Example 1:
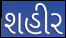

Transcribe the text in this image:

શહીર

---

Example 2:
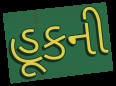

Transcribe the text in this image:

હૂકની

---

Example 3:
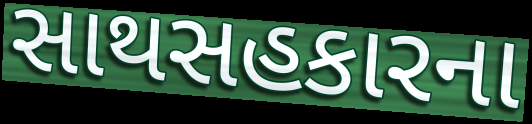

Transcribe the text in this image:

સાથસહકારના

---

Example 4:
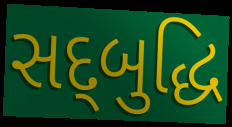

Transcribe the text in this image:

સદ્‌બુદ્ધિ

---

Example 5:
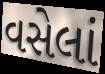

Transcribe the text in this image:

વસેલાં